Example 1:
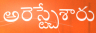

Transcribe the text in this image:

అరెస్ట్చేశారు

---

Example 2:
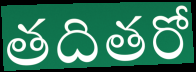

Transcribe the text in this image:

తదితరో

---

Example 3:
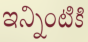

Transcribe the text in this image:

ఇన్నింటికి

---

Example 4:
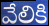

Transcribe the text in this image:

వేలికి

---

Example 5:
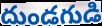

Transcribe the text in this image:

దుండగుడి